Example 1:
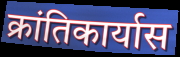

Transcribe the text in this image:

क्रांतिकार्यास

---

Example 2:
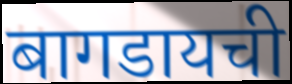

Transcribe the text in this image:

बागडायची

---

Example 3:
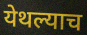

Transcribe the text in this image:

येथल्याच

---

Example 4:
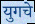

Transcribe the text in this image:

युगचे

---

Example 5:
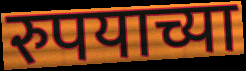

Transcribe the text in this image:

रुपयाच्या